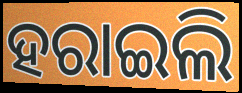
ହରାଇଲି